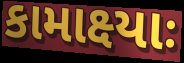
કામાક્ષ્યાઃ